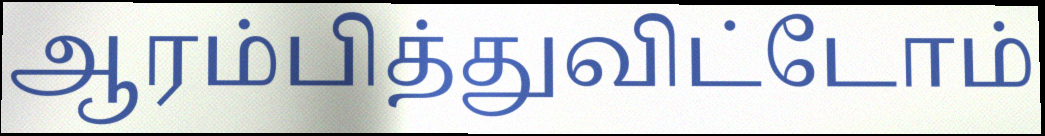
ஆரம்பித்துவிட்டோம்